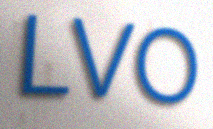
LVO